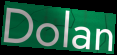
Dolan